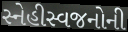
સ્નેહીસ્વજનોની